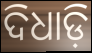
ଦିଧାଡ଼ି